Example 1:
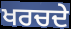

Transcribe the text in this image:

ਖਰਚਦੇ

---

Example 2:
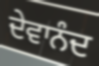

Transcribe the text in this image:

ਦੇਵਾਨੰਦ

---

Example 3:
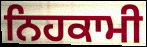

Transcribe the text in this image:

ਨਿਹਕਾਮੀ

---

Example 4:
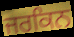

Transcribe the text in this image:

ਜਰਕਿਨ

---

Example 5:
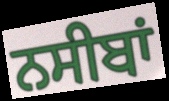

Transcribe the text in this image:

ਨਸੀਬਾਂ